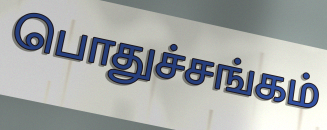
பொதுச்சங்கம்